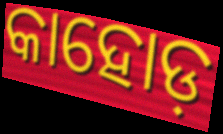
କାହୋଡ଼